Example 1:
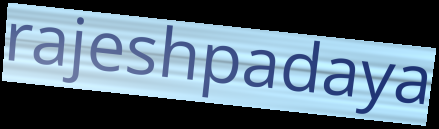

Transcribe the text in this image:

rajeshpadaya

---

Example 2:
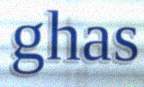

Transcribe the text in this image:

ghas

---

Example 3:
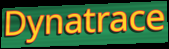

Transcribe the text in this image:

Dynatrace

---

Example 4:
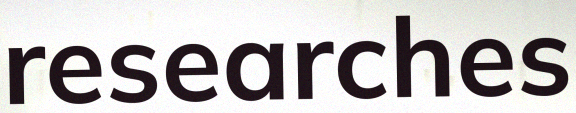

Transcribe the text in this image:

researches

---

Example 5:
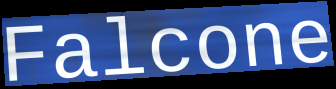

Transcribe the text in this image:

Falcone